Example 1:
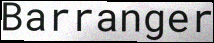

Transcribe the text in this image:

Barranger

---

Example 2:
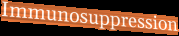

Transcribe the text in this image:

Immunosuppression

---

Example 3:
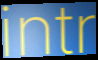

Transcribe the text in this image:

intr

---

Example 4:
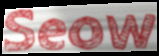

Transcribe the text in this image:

Seow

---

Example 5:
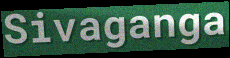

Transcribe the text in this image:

Sivaganga